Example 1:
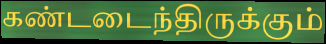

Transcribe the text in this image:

கண்டடைந்திருக்கும்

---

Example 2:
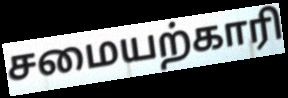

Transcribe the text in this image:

சமையற்காரி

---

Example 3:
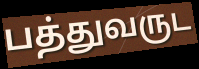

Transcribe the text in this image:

பத்துவருட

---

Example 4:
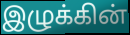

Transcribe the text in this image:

இழுக்கின்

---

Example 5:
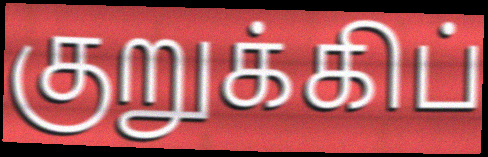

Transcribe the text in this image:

குறுக்கிப்